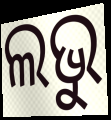
ଲଭୁ